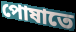
পোষাতে